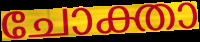
ചോക്താ